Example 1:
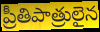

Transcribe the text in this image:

ప్రీతిపాత్రులైన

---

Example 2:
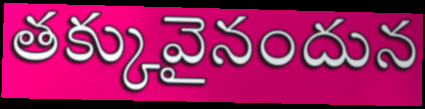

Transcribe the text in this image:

తక్కువైనందున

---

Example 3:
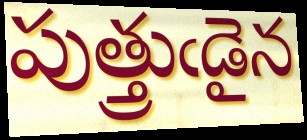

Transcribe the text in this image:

పుత్త్రుఁడైన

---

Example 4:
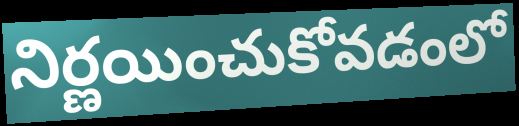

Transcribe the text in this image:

నిర్ణయించుకోవడంలో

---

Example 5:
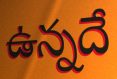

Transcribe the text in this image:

ఉన్నదే